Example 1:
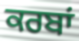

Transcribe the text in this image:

ਕਰਬਾਂ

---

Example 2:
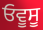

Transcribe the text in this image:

ਓਵੂਸੂ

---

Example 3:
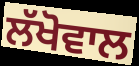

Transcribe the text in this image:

ਲੱਖੋਵਾਲ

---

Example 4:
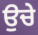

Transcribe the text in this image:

ਉਚੇ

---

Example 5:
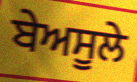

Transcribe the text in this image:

ਬੇਅਸੂਲੇ